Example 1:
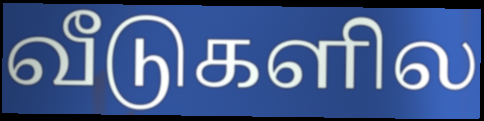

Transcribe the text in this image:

வீடுகளில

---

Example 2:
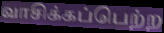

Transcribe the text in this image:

வாசிக்கப்பெற்ற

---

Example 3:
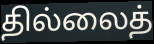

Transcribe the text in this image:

தில்லைத்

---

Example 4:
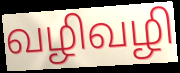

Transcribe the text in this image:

வழிவழி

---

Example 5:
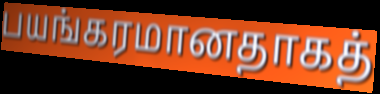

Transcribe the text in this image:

பயங்கரமானதாகத்